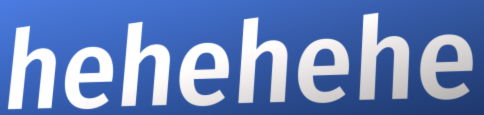
hehehehe